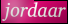
jordaar